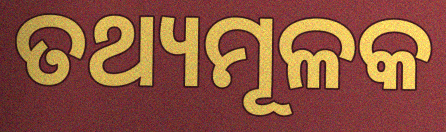
ତଥ୍ୟମୂଳକ